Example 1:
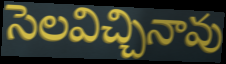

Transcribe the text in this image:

సెలవిచ్చినావు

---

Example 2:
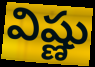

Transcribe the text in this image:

విష్ణు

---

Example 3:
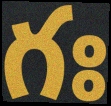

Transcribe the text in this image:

గః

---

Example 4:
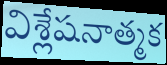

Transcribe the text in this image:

విశ్లేషనాత్మక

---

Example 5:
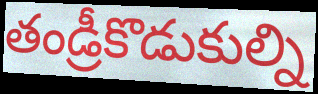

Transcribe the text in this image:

తండ్రీకొడుకుల్ని